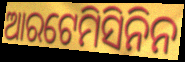
ଆରଟେମିସିନିନ